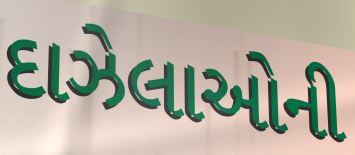
દાઝેલાઓની